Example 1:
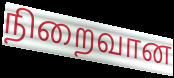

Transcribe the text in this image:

நிறைவான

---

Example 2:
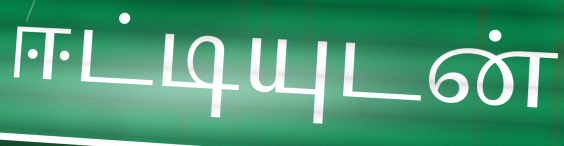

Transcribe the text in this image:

ஈட்டியுடன்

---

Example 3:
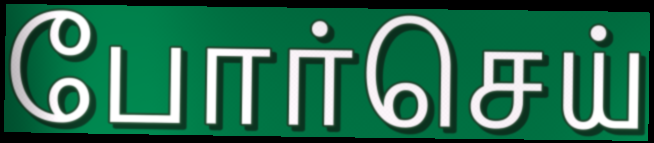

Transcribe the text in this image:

போர்செய்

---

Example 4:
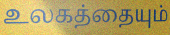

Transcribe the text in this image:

உலகத்தையும்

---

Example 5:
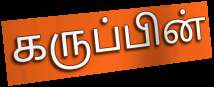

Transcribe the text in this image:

கருப்பின்